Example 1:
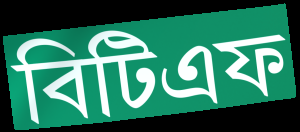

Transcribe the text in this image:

বিটিএফ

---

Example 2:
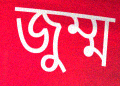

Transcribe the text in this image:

জুম্ম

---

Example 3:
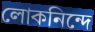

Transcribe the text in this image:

লোকনিন্দে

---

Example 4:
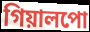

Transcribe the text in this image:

গিয়ালপো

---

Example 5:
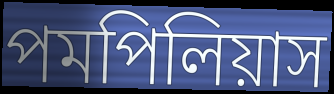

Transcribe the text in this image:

পমপিলিয়াস